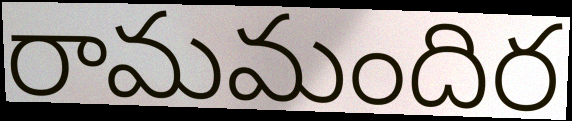
రామమందిర